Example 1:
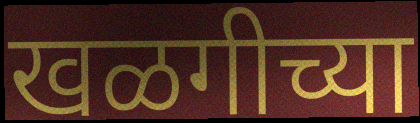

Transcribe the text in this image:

खळगीच्या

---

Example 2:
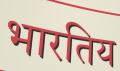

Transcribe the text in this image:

भारतिय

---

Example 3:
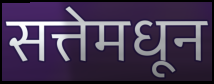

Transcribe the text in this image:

सत्तेमधून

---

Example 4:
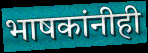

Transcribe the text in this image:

भाषकांनीही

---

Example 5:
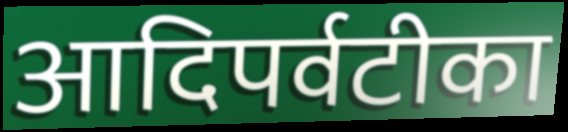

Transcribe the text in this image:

आदिपर्वटीका